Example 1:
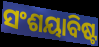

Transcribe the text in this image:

ସଂଶୟାବିଷ୍ଟ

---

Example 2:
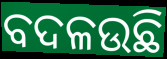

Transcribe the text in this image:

ବଦଳଉଛି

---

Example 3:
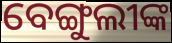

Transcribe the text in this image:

ବେଙ୍ଗୁଲୀଙ୍କ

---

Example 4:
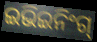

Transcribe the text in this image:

ଇଭିଇନିଂଗ୍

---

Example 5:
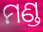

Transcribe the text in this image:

ମଣ୍ଡ